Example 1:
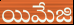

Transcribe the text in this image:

యిమేజి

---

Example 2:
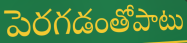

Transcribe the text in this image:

పెరగడంతోపాటు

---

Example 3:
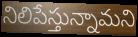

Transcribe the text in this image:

నిలిపేస్తున్నామని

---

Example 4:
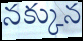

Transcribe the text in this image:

నక్కున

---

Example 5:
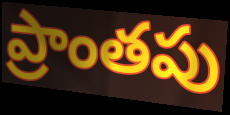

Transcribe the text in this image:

ప్రాంతపు